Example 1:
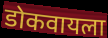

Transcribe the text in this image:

डोकवायला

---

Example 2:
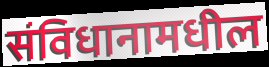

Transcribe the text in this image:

संविधानामधील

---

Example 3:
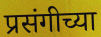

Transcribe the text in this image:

प्रसंगीच्या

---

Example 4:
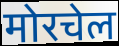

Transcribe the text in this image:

मोरचेल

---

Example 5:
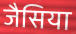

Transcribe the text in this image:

जैसिया